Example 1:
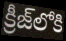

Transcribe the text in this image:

క్రీజ్‌లోకి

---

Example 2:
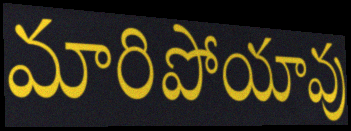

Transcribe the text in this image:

మారిపోయావు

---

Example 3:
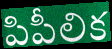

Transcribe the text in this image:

పిపీలిక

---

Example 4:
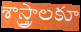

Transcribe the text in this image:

శాస్త్రాలకూ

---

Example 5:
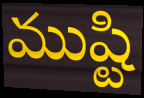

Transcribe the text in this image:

ముష్టి